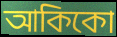
আকিকো